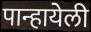
पान्हायेली